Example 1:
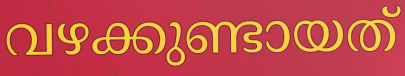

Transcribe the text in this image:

വഴക്കുണ്ടായത്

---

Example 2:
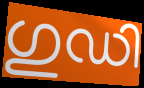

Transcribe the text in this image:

ഗുഡി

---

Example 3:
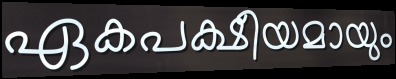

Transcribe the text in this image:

ഏകപക്ഷീയമായും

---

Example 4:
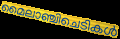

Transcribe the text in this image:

മൈലാഞ്ചിചെടികൾ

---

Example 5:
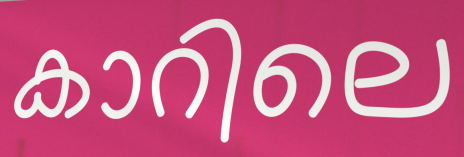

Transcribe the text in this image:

കാറിലെ